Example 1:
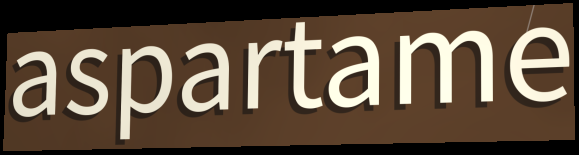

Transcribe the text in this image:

aspartame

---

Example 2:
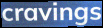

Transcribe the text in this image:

cravings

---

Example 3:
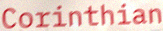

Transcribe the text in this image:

Corinthian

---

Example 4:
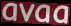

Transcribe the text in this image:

avaa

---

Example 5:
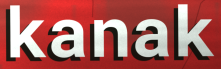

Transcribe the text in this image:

kanak